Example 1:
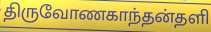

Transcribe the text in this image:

திருவோணகாந்தன்தளி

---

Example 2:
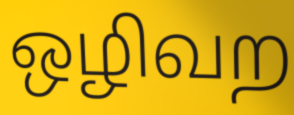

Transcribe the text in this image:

ஒழிவற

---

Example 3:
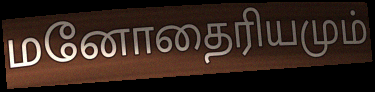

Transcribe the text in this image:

மனோதைரியமும்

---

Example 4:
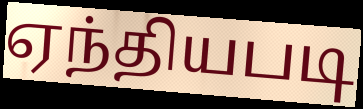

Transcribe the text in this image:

ஏந்தியபடி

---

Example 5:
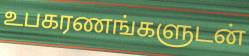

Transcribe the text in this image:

உபகரணங்களுடன்